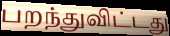
பறந்துவிட்டது